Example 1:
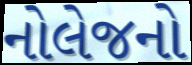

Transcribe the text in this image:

નોલેજનો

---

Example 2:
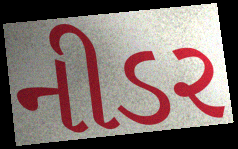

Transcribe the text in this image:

નીડર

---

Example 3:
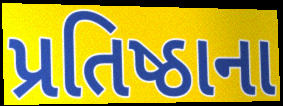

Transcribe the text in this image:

પ્રતિષ્ઠાના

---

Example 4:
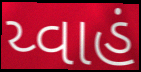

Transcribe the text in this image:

ય્વાહં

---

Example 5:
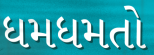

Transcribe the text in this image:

ધમધમતો